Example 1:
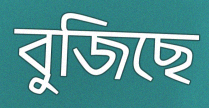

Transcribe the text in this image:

বুজিছে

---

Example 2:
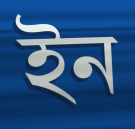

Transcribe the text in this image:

ইন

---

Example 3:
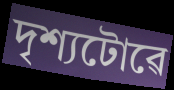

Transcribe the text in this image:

দৃশ্যটোৱে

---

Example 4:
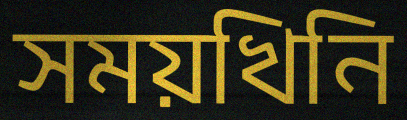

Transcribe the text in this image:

সময়খিনি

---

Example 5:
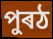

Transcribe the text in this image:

পুৰঠ